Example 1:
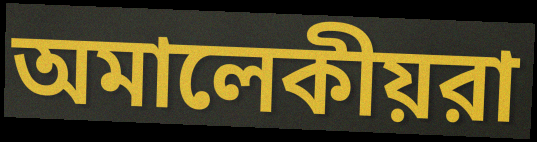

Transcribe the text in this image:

অমালেকীয়রা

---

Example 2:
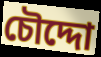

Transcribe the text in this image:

চৌদ্দো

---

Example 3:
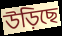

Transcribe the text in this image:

উড়িছে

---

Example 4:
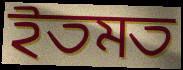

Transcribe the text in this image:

ইতমত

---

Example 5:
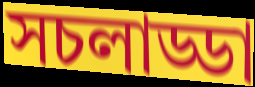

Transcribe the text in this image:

সচলাড্ডা